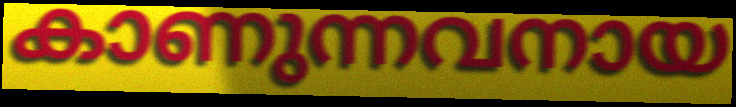
കാണുന്നവനായ